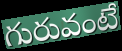
గురువంటే